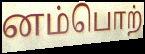
னம்பொற்